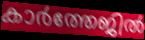
കാർത്തേജിൽ